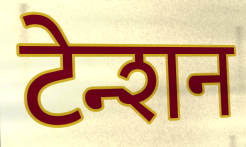
टेन्शन